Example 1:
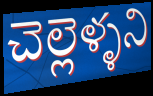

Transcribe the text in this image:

చెల్లెళ్ళని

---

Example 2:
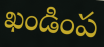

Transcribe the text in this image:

ఖండింప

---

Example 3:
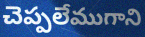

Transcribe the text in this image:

చెప్పలేముగాని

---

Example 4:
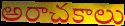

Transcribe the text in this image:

అరాచకాలు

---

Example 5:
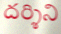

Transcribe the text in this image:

దర్శిని